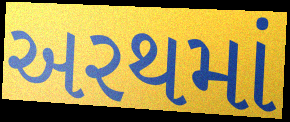
અરથમાં